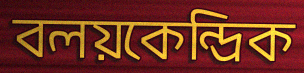
বলয়কেন্দ্রিক